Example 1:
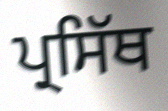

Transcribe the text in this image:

ਪ੍ਰਸਿੱਥ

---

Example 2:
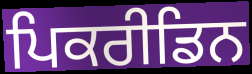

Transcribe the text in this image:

ਪਿਕਰੀਡਿਨ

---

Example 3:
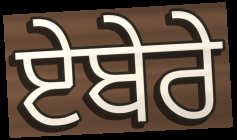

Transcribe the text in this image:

ਏਬੇਰੇ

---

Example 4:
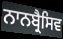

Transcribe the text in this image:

ਨਾਨਬ੍ਰੈਸਿਵ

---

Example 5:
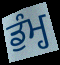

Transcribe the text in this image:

ਡੁੰਮ੍ਹ